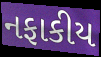
નફાકીય